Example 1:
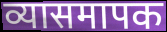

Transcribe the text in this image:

व्यासमापक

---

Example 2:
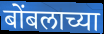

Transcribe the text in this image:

बोंबलाच्या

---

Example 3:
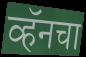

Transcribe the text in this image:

व्हॅनचा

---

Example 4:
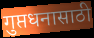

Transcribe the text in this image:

गुप्तधनासाठी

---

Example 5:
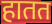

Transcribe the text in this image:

हातत